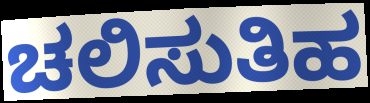
ಚಲಿಸುತಿಹ